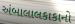
અંબાલાલકાકાનો